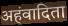
अहंवादिता